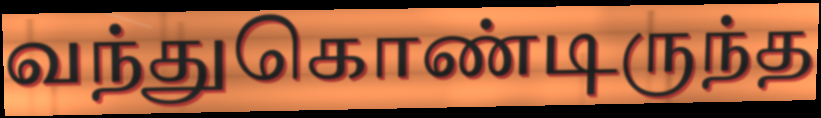
வந்துகொண்டிருந்த